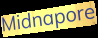
Midnapore